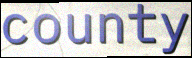
county